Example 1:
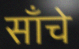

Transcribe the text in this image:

साँचे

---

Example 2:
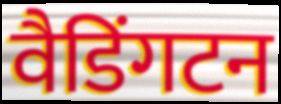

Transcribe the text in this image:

वैडिंगटन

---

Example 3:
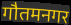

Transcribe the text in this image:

गौतमनगर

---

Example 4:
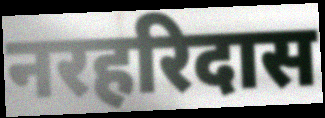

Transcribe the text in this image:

नरहरिदास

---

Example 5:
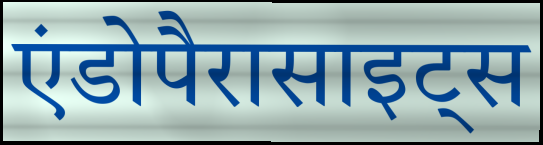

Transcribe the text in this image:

एंडोपैरासाइट्स